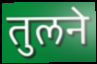
तुलने